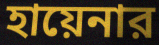
হায়েনার